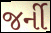
જર્ની